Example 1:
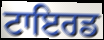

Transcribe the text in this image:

ਟਾਇਰਡ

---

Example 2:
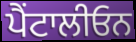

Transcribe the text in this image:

ਪੈਂਟਾਲੀਓਨ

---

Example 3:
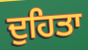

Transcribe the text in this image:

ਦੁਹਿਤਾ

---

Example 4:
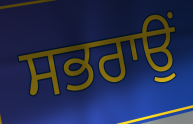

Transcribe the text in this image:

ਸਭਰਾਉਂ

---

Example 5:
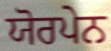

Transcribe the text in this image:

ਯੋਰਪੇਨ